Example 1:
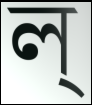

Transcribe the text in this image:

ল্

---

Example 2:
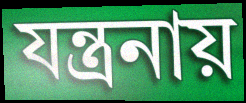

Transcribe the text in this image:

যন্ত্রনায়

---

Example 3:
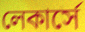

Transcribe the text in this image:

লেকার্সে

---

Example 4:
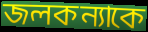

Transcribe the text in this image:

জলকন্যাকে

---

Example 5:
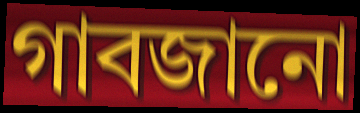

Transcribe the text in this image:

গাবজানো